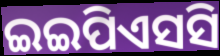
ଇଇପିଏସସି